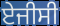
ਏਜੀਸੀ